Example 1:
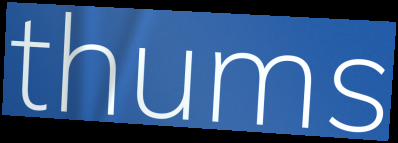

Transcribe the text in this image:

thums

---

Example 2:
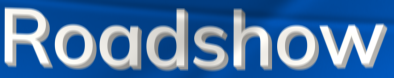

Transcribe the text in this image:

Roadshow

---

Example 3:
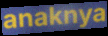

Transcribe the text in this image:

anaknya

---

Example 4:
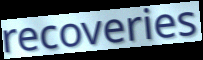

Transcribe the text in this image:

recoveries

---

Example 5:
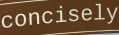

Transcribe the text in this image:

concisely